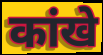
कांखे